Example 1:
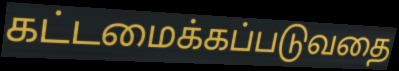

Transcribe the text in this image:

கட்டமைக்கப்படுவதை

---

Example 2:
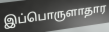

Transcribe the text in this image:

இப்பொருளாதார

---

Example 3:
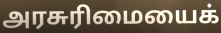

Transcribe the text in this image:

அரசுரிமையைக்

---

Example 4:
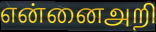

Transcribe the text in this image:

என்னைஅறி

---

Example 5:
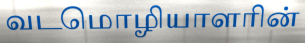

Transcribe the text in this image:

வடமொழியாளரின்